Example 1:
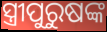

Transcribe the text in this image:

ସ୍ତ୍ରୀପୁରୁଷଙ୍କ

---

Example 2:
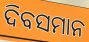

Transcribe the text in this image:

ଦିବସମାନ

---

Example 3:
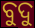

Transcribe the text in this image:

ବୁଦୁ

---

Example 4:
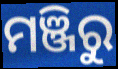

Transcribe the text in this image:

ମଞ୍ଜିରୁ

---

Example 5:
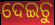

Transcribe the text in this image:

ଦେଇଚୁ